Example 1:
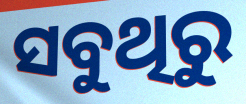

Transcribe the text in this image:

ସବୁଥିରୁ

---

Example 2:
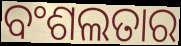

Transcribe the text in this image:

ବଂଶଲତାର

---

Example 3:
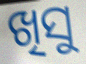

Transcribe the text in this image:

ଖିସୁ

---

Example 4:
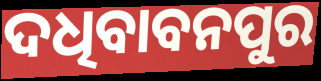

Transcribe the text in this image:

ଦଧିବାବନପୁର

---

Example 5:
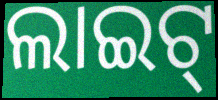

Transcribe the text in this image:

ଲାଇଟ୍